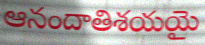
ఆనందాతిశయయై